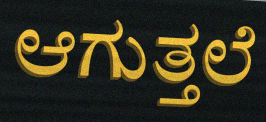
ಆಗುತ್ತಲೆ